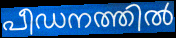
പീഡനത്തിൽ